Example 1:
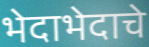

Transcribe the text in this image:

भेदाभेदाचे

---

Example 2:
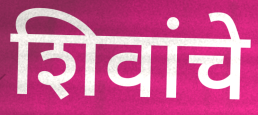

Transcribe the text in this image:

शिवांचे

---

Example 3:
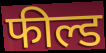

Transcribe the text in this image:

फील्ड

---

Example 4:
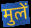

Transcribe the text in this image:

मुलें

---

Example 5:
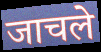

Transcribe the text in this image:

जाचले